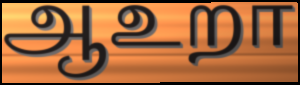
ஆஉறா